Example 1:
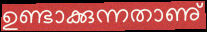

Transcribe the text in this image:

ഉണ്ടാക്കുന്നതാണു്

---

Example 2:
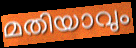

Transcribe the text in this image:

മതിയാവും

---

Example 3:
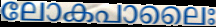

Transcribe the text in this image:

ലോകപാലൈഃ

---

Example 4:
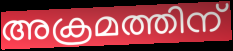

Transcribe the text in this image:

അക്രമത്തിന്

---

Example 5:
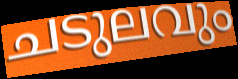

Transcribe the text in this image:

ചടുലവും